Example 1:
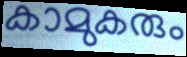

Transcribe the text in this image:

കാമുകരും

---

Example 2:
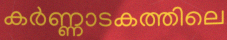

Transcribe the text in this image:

കർണ്ണാടകത്തിലെ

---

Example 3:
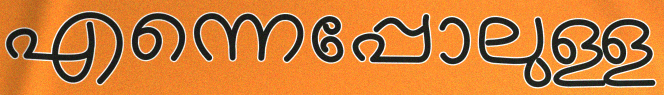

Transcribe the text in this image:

എന്നെപ്പോലുള്ള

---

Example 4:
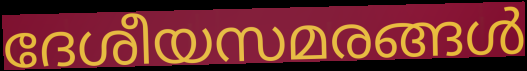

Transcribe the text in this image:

ദേശീയസമരങ്ങൾ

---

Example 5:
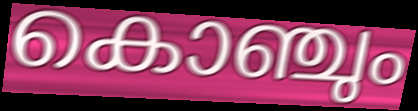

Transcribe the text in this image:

കൊഞ്ചും